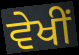
ਵੇਖੀਂ